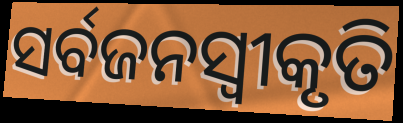
ସର୍ବଜନସ୍ୱୀକୃତି